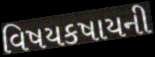
વિષયકષાયની